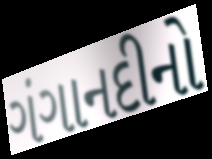
ગંગાનદીનો